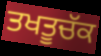
ਤਖਤੂਚੱਕ